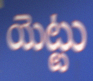
యెట్టు